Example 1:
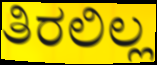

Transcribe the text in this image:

ತಿರಲಿಲ್ಲ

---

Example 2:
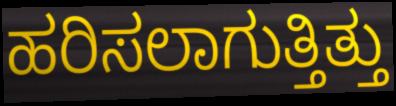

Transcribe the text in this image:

ಹರಿಸಲಾಗುತ್ತಿತ್ತು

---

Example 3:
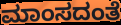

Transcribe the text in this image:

ಮಾಂಸದಂತೆ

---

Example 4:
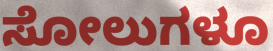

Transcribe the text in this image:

ಸೋಲುಗಳೂ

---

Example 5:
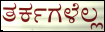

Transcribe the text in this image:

ತರ್ಕಗಳೆಲ್ಲ